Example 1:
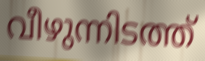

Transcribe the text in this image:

വീഴുന്നിടത്ത്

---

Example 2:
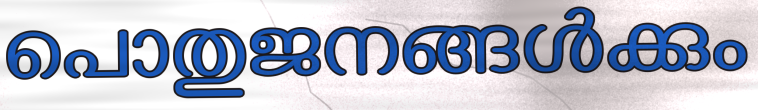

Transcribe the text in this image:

പൊതുജനങ്ങൾക്കും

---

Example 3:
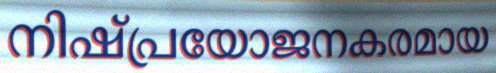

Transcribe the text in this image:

നിഷ്പ്രയോജനകരമായ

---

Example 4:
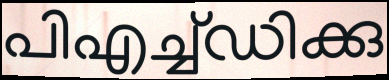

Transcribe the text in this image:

പിഎച്ച്ഡിക്കു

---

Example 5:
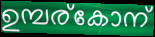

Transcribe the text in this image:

ഉമ്പര്കോന്